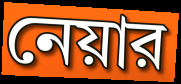
নেয়ার